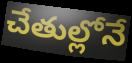
చేతుల్లోనే